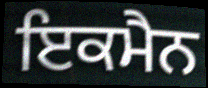
ਇਕਮੈਨ